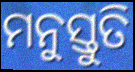
ମନୁସ୍ତୁତି